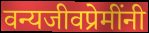
वन्यजीवप्रेमींनी